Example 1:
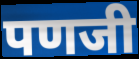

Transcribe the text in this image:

पणजी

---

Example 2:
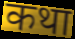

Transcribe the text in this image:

कथा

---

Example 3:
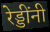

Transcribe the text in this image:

रेड्डींनी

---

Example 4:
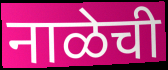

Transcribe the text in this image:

नाळेची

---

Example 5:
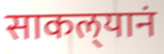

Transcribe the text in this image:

साकल्यानं